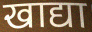
खाद्या